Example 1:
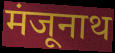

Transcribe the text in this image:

मंजूनाथ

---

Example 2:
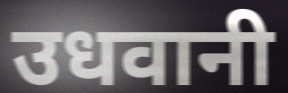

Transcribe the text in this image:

उधवानी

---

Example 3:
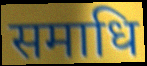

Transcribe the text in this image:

समाधि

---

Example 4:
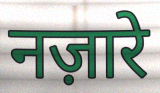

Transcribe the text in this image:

नज़ारे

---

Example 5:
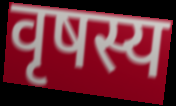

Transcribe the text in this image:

वृषस्य